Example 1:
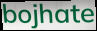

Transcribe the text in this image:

bojhate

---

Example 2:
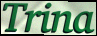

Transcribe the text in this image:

Trina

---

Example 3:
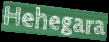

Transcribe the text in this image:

Hehegara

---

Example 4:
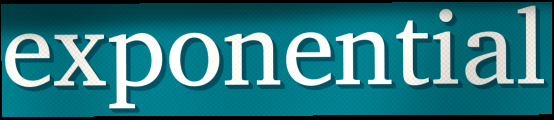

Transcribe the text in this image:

exponential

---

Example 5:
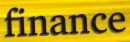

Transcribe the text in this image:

finance